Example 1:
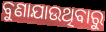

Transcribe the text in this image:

ବୁଣାଯାଉଥିବାରୁ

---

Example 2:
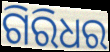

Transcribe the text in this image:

ଗିରିଧର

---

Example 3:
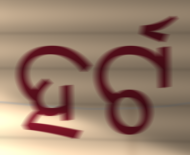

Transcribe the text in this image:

ହର୍ଟ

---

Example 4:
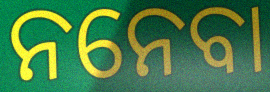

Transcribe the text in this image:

ନନେବା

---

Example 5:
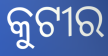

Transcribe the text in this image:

କୁଟୀର